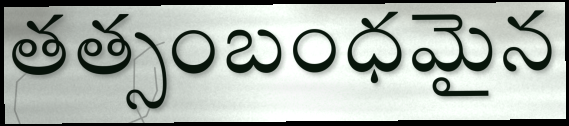
తత్సంబంధమైన